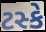
ટસ્કે